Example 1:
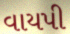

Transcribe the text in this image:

વાયપી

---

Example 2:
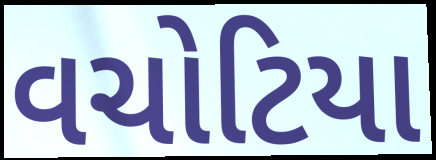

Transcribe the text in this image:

વચોટિયા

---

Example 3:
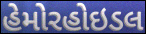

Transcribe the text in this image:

હેમોરહોઇડલ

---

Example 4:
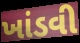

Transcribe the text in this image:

ખાંડવી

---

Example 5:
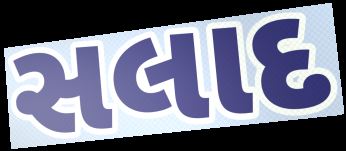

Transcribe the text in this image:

સલાદ